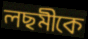
লছমীকে